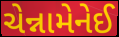
ચેન્નામેનેઈ